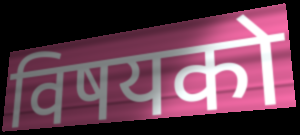
विषयको